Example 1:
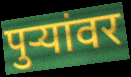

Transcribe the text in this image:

पुऱ्यांवर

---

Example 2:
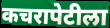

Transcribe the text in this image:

कचरापेटीला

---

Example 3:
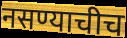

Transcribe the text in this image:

नसण्याचीच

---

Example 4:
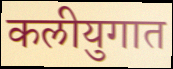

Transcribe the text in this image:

कलीयुगात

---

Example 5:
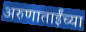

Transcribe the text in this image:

अरुणाताईंच्या